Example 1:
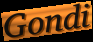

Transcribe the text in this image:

Gondi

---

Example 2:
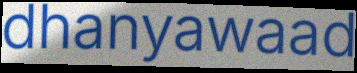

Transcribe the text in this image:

dhanyawaad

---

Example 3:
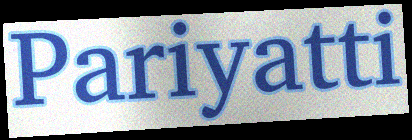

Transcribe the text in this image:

Pariyatti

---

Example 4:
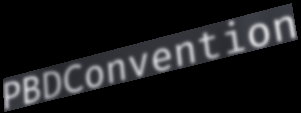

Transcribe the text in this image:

PBDConvention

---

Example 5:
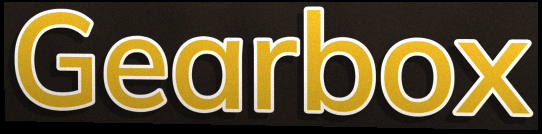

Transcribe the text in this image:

Gearbox